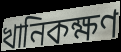
খানিকক্ষণ